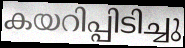
കയറിപ്പിടിച്ചു